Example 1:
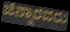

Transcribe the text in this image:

ಜಿನ್ನಾರವರು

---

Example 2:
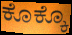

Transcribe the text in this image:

ಕೊಕ್ಕೊ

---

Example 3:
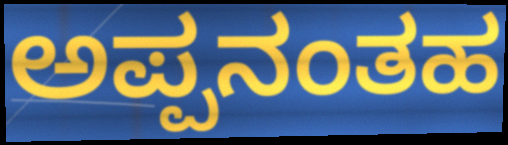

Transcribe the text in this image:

ಅಪ್ಪನಂತಹ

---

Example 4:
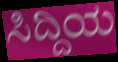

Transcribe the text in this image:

ಸಿದ್ದಿಯ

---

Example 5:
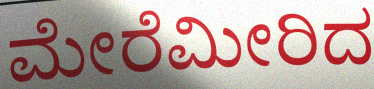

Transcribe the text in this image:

ಮೇರೆಮೀರಿದ